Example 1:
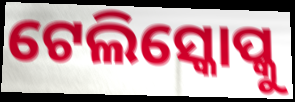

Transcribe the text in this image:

ଟେଲିସ୍କୋପ୍କୁ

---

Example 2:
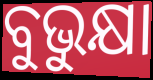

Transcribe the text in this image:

ବୁଭୁକ୍ଷା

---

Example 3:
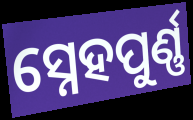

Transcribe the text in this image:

ସ୍ନେହପୁର୍ଣ୍ଣ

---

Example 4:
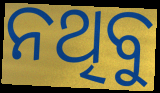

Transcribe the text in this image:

ନଥିବୁ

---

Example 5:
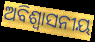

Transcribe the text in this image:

ଅବିଶ୍ୱାସନୀୟ